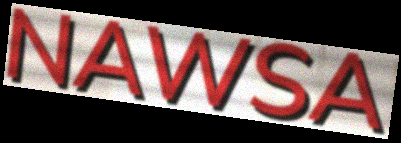
NAWSA